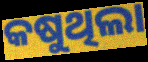
କଷୁଥିଲା